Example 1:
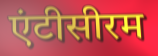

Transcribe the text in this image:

एंटीसीरम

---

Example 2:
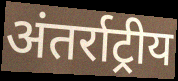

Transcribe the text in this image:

अंतर्राट्रीय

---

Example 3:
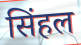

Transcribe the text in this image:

सिंहल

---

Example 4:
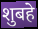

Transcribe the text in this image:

शुबहे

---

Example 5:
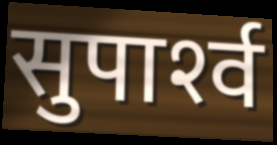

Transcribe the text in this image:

सुपार्श्व